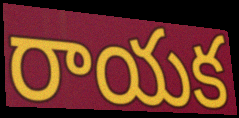
రాయక